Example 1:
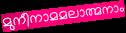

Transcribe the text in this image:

മുനീനാമമലാത്മനാം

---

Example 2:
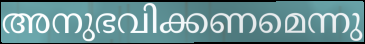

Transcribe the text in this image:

അനുഭവിക്കണമെന്നു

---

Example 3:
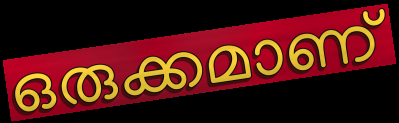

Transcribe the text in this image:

ഒരുക്കമാണ്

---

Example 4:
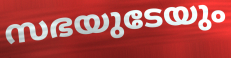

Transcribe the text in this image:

സഭയുടേയും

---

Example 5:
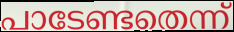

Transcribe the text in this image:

പാടേണ്ടതെന്ന്